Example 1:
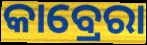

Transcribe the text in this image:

କାବ୍ରେରା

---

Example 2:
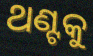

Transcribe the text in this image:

ଥଣ୍ଟକୁ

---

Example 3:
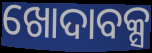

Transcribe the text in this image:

ଖୋଦାବକ୍ସ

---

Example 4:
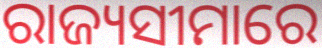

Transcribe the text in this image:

ରାଜ୍ୟସୀମାରେ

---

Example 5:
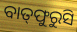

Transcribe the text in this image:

ବାତ୍‌ଫୁରୁସି